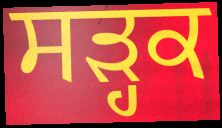
ਸੜ੍ਹਕ